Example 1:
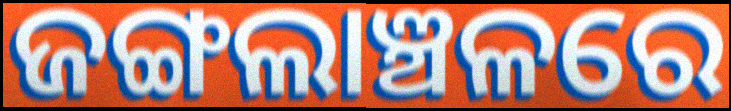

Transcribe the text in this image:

ଜଙ୍ଗଲାଞ୍ଚଳରେ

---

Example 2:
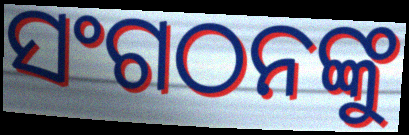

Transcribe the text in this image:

ସଂଗଠନଙ୍କୁ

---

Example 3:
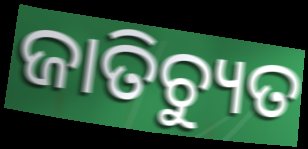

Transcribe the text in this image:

ଜାତିଚ୍ୟୁତ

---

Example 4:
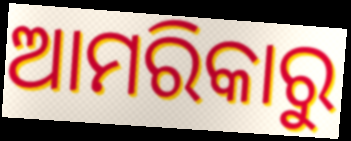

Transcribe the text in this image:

ଆମରିକାରୁ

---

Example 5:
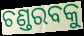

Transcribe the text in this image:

ଚଣ୍ଡରବକୁ